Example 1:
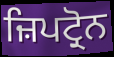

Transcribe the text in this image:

ਜ਼ਿਪਟ੍ਰੋਨ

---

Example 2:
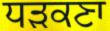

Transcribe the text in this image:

ਧੜਕਣਾ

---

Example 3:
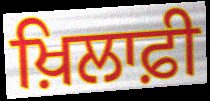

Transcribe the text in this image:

ਖ਼ਿਲਾਫ਼ੀ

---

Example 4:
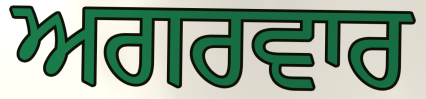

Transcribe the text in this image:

ਅਗਰਵਾਰ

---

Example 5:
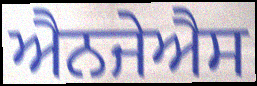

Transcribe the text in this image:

ਐਨਜੇਐਸ